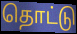
தொட்டு